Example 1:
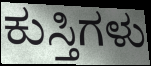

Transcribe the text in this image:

ಕುಸ್ತಿಗಳು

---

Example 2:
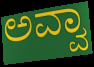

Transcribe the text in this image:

ಅವ್ವಾ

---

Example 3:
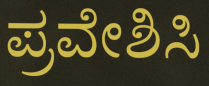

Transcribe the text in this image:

ಪ್ರವೇಶಿಸಿ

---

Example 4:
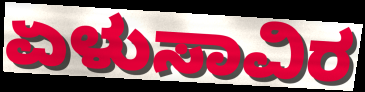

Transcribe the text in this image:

ಏಳುಸಾವಿರ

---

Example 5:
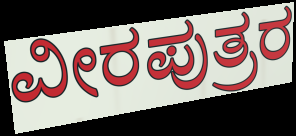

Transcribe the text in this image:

ವೀರಪುತ್ರರ